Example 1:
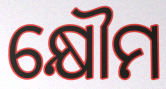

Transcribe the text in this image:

କ୍ଷୌମ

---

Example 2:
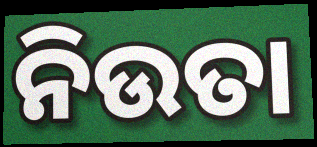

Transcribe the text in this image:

ନିଉତା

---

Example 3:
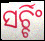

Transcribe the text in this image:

ସର୍ଚ୍ଚିଂ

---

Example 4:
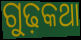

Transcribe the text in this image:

ଗୁଢ଼କଥା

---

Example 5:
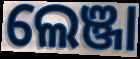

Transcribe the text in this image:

ଲେଞ୍ଜା